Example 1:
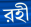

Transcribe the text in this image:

রহী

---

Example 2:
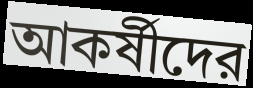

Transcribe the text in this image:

আকর্ষীদের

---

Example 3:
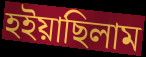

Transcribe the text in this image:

হইয়াছিলাম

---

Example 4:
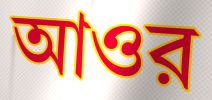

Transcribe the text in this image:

আওর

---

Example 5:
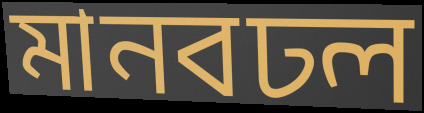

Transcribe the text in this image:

মানবঢল